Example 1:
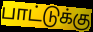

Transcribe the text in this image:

பாட்டுக்கு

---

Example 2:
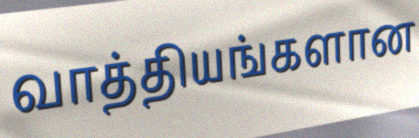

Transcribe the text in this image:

வாத்தியங்களான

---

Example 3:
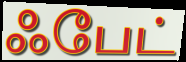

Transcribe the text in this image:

ஃபேட்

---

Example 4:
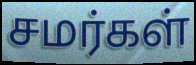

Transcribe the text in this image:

சமர்கள்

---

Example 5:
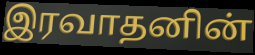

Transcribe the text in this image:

இரவாதனின்